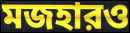
মজহারও